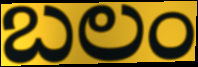
బలం